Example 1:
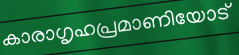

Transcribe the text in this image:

കാരാഗൃഹപ്രമാണിയോട്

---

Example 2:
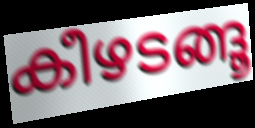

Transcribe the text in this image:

കീഴടങ്ങൂ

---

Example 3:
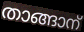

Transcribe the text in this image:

താങ്ങാന്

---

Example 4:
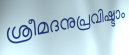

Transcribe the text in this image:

ശ്രീമദനുപ്രവിഷ്ടാം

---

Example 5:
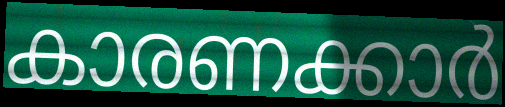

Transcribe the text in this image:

കാരണക്കാർ